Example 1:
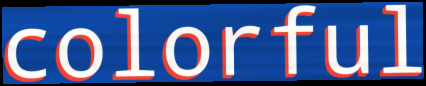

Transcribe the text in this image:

colorful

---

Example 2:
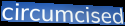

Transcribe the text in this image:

circumcised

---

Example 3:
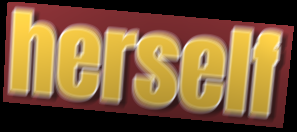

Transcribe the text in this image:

herself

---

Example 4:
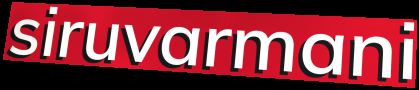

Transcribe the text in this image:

siruvarmani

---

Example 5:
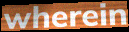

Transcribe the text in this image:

wherein